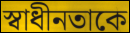
স্বাধীনতাকে